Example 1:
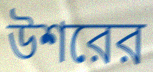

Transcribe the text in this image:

উশরের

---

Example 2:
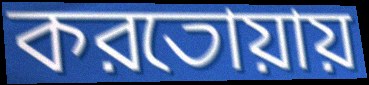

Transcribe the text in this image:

করতোয়ায়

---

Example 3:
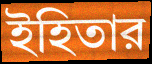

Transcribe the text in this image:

ইহিতার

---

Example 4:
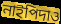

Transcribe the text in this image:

নাইপিদাও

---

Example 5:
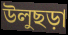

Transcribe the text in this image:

উলুছড়া